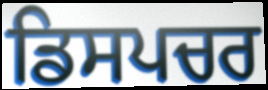
ਡਿਸਪਚਰ